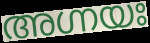
അഗ്നയഃ